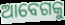
ଆବେଗକୁ